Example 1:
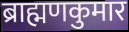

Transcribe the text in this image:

ब्राह्मणकुमार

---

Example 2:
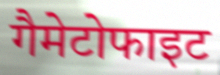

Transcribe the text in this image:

गैमेटोफाइट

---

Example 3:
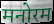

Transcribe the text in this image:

मनोरम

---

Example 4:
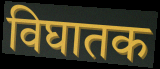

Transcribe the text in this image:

विघातक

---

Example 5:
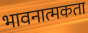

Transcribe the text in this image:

भावनात्मकता